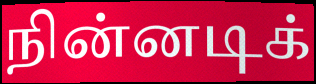
நின்னடிக்